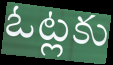
ఓట్లకు